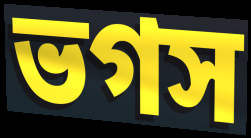
ভগস